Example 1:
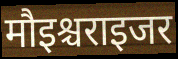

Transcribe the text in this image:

मौइश्चराइजर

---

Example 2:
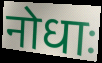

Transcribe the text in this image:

नोधाः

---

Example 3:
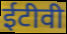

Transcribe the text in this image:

ईटीवी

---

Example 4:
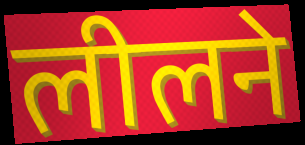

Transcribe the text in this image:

लीलने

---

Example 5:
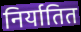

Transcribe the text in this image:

निर्यातित